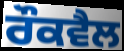
ਰੌਕਵੈਲ